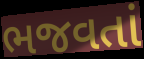
ભજવતાં